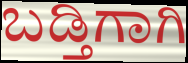
ಬಡ್ತಿಗಾಗಿ